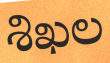
శిఖల